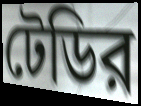
টেডির